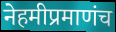
नेहमीप्रमाणंच